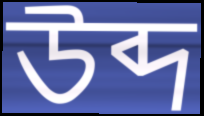
উব্দ